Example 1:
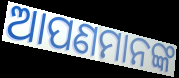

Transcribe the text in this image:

ଆପଣମାନଙ୍କ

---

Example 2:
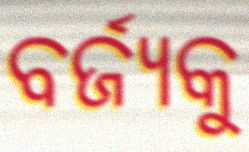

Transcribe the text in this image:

ବର୍ଜ୍ୟକୁ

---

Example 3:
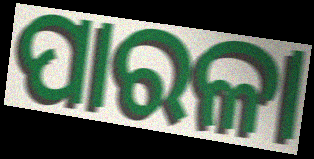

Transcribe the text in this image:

ପାରଳା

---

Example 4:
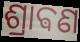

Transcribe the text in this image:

ଶ୍ରାଵଣ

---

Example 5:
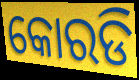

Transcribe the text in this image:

କୋରଡି